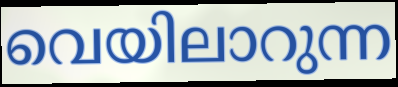
വെയിലാറുന്ന